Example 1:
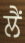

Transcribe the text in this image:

ਲੈਂ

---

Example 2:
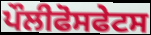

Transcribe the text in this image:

ਪੌਲੀਫੋਸਫੇਟਸ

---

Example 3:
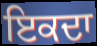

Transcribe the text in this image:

ਇਕਦਾ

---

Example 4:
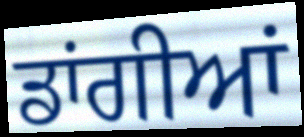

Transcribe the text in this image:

ਡਾਂਗੀਆਂ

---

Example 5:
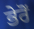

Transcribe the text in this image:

ਭੇਰੋਂ